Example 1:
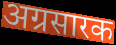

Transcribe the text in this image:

अग्रसारक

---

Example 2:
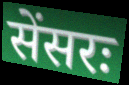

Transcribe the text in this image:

सेंसरः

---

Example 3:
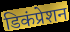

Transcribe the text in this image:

डिकंप्रेशन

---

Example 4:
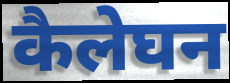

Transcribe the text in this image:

कैलेघन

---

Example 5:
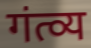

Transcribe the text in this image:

गंत्व्य